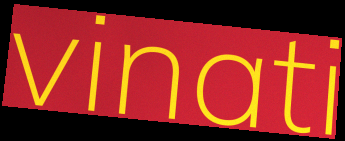
vinati